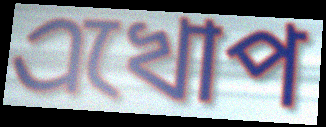
এখোপ